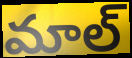
మాల్